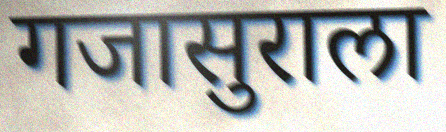
गजासुराला